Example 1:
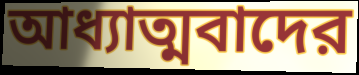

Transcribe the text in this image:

আধ্যাত্মবাদের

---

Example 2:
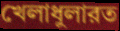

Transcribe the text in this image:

খেলাধুলারত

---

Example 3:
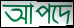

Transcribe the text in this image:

আপদে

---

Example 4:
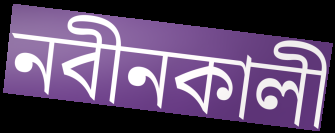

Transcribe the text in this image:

নবীনকালী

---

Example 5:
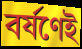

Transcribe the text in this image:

বর্ষণেই